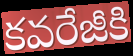
కవరేజీకి